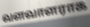
வளவாளராக